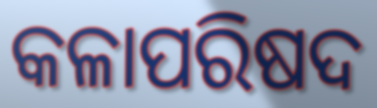
କଳାପରିଷଦ